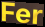
Fer